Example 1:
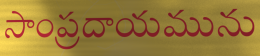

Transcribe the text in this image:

సాంప్రదాయమును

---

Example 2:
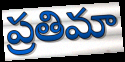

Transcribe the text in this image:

ప్రతిమా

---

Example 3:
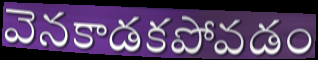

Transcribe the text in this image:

వెనకాడకపోవడం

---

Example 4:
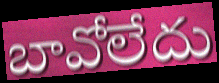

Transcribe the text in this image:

బావోలేదు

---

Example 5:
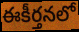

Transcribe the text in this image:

ఈకీర్తనలో